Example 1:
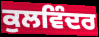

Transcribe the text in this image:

ਕੁਲਵਿੰਦਰ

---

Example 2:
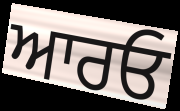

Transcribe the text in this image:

ਆਰਓ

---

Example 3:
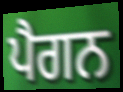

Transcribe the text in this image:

ਪੈਗਨ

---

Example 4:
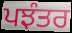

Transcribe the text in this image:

ਪਝੰਤਰ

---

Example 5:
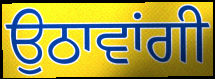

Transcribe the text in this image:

ਉਠਾਵਾਂਗੀ